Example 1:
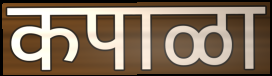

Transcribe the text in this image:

कपाळा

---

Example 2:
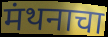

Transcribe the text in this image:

मंथनाचा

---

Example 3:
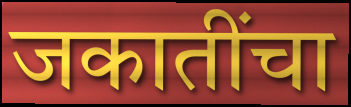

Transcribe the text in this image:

जकातींचा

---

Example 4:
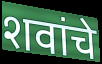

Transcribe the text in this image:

शवांचे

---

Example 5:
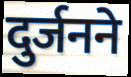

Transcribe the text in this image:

दुर्जनने